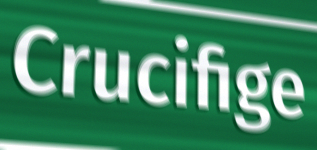
Crucifige